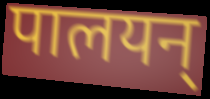
पालयन्